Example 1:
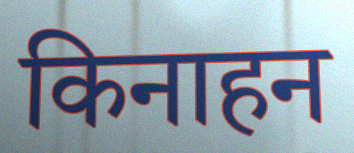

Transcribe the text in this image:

किनाहन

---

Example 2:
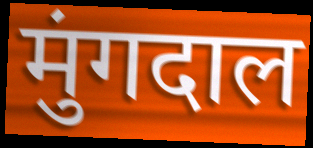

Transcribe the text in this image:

मुंगदाल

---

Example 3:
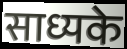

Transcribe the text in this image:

साध्यके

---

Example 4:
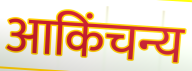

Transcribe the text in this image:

आकिंचन्य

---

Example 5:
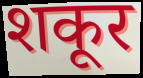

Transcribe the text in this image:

शकूर